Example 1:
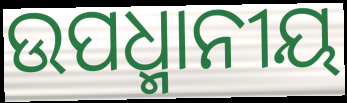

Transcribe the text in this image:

ଉପଧ୍ମାନୀୟ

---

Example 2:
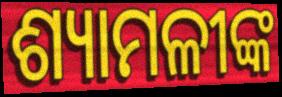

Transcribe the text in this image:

ଶ୍ୟାମଳୀଙ୍କ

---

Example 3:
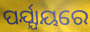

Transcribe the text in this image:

ପର୍ଯ୍ଯାୟରେ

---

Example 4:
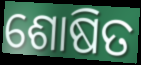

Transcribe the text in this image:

ଶୋଷିତ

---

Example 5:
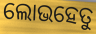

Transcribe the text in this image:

ଲୋଭହେତୁ